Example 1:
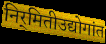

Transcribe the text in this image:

निर्मितीउद्योगांत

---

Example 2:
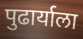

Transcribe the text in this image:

पुढार्याला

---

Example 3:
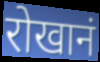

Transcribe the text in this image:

रोखानं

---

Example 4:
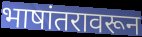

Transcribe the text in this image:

भाषांतरावरून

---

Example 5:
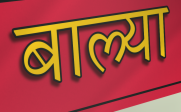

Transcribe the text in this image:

बाल्या